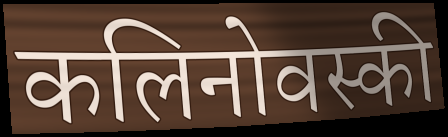
कलिनोवस्की